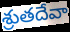
శ్రుతదేవా